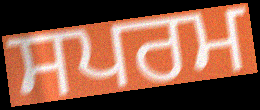
ਸਪਰਮ